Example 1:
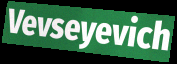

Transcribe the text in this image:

Vevseyevich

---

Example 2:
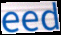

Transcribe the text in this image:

eed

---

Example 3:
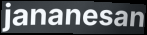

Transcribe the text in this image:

jananesan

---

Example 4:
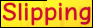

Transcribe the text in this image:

Slipping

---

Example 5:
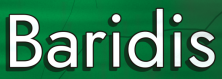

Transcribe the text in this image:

Baridis